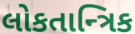
લોકતાન્ત્રિક